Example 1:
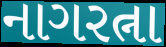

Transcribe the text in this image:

નાગરત્ના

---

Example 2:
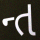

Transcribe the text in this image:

ન્ત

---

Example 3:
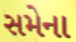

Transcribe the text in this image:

સમેના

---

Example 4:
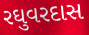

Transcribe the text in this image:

રઘુવરદાસ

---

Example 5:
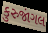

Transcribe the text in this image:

કુરુજાંગલ